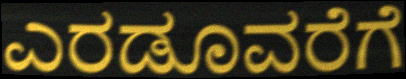
ಎರಡೂವರೆಗೆ